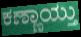
ಕಣ್ಣಾಯ್ತು